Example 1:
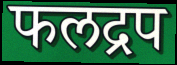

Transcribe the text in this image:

फलद्रप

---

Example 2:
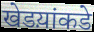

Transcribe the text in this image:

खेडय़ांकडे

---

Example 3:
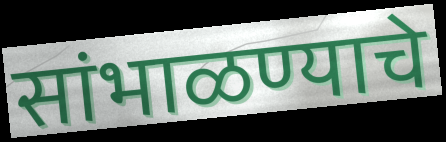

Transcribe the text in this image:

सांभाळण्याचे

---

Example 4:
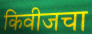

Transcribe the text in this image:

किवीजचा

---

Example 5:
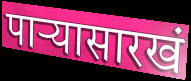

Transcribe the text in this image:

पाऱ्यासारखं